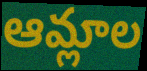
ఆమ్లాల